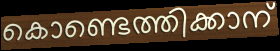
കൊണ്ടെത്തിക്കാന്